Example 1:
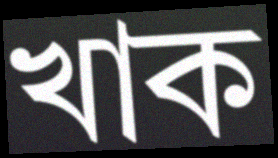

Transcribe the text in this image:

খাক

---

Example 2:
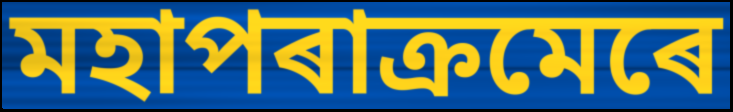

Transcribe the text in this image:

মহাপৰাক্ৰমেৰে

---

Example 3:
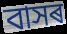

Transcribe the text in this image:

বাসৰ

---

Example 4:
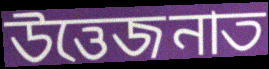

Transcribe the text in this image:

উত্তেজনাত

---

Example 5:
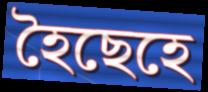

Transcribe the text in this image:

হৈছেহে